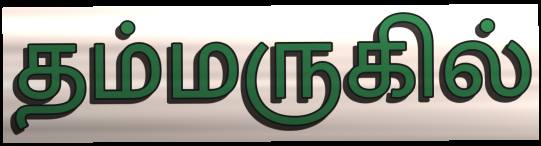
தம்மருகில்